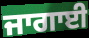
ਜਾਗਾਈ